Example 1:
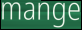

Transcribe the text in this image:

mange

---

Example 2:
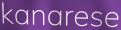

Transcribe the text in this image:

kanarese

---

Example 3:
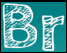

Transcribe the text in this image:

Br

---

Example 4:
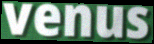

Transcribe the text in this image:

venus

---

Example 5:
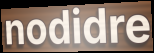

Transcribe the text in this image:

nodidre